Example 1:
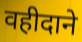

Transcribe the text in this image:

वहीदाने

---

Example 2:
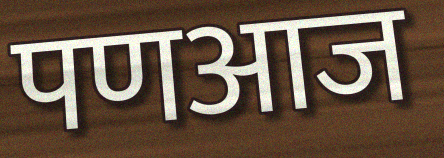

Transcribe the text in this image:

पणआज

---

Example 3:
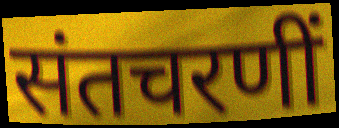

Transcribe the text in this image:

संतचरणीं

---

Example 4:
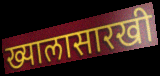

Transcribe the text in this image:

ख्यालासारखी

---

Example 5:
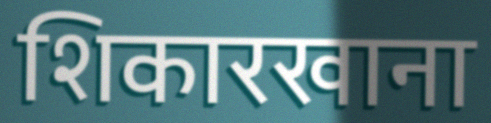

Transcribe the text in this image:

शिकारखाना